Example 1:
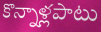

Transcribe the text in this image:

కొన్నాళ్లపాటు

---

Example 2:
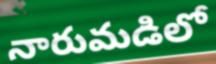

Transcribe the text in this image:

నారుమడిలో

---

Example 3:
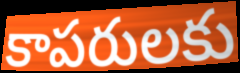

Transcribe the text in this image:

కాపరులకు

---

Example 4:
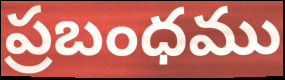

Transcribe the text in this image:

ప్రబంధము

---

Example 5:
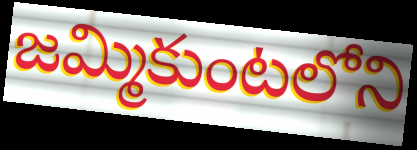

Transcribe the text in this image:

జమ్మికుంటలోని